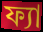
ফ্যা